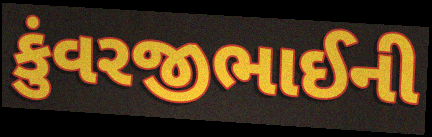
કુંવરજીભાઈની